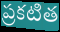
ప్రకటిత